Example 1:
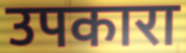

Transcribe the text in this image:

उपकारा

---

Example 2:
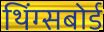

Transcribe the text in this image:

थिंग्सबोर्ड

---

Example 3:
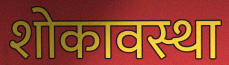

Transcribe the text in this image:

शोकावस्था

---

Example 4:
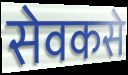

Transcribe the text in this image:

सेवकसे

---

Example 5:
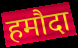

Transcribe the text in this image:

हमौदा